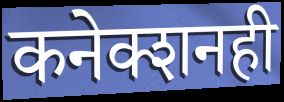
कनेक्शनही